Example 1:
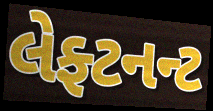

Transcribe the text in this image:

લેફ્ટનન્ટ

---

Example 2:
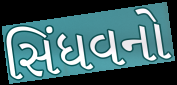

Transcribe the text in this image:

સિંધવનો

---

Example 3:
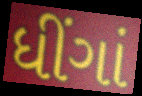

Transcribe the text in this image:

ધીંગાં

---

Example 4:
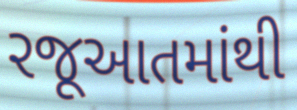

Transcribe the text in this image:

રજૂઆતમાંથી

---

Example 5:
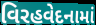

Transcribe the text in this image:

વિરહવેદનામાં